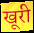
खूरी